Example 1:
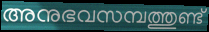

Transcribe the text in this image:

അനുഭവസമ്പത്തുണ്ട്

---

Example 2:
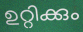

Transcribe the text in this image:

ഉറ്റിക്കും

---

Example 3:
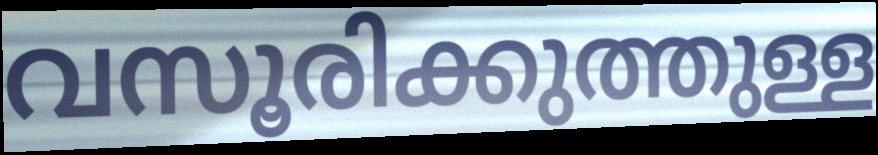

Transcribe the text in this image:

വസൂരിക്കുത്തുള്ള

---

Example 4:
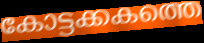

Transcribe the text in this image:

കോട്ടക്കകത്തെ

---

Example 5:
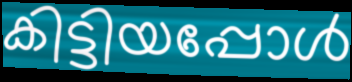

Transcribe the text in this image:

കിട്ടിയപ്പോൾ